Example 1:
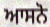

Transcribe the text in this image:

ਆਸਨੋ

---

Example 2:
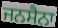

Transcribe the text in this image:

ਜਨਸੈਨਾ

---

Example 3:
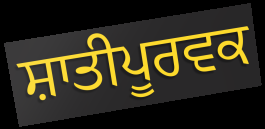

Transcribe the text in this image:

ਸ਼ਾਤੀਪੂਰਵਕ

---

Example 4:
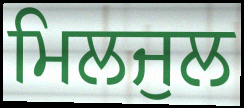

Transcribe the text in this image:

ਮਿਲਜੁਲ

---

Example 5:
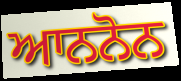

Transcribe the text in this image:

ਆਨਨੋਨ